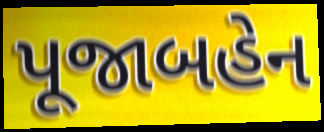
પૂજાબહેન